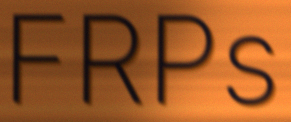
FRPs